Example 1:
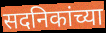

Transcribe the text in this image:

सदनिकांच्या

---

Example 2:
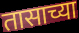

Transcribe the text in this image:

तासाच्या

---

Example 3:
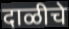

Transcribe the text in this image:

दाळीचे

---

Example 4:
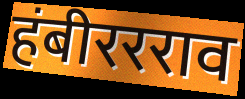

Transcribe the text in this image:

हंबीररराव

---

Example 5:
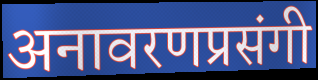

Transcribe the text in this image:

अनावरणप्रसंगी